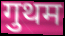
गुथम